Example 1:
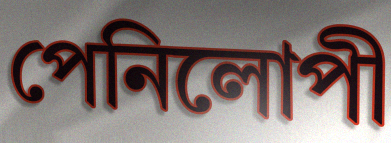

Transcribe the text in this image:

পেনিলোপী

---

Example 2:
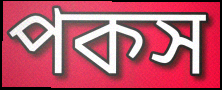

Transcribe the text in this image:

পকস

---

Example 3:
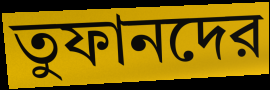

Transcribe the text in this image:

তুফানদের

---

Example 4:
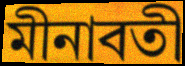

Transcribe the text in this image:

মীনাবতী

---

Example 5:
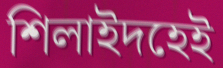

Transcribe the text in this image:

শিলাইদহেই